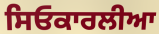
ਸਿਓਕਾਰਲੀਆ